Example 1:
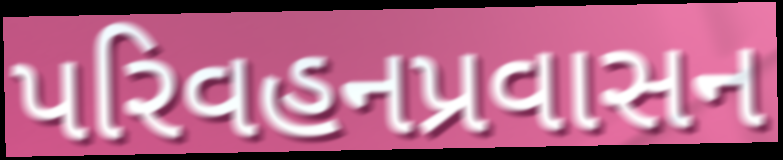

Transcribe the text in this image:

પરિવહનપ્રવાસન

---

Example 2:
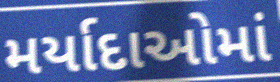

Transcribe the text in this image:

મર્યાદાઓમાં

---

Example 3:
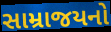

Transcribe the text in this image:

સામ્રાજયનો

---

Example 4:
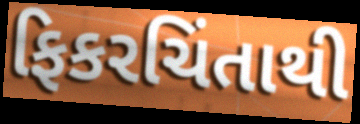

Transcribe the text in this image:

ફિકરચિંતાથી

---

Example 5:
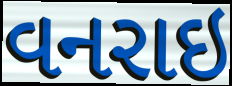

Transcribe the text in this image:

વનરાઇ